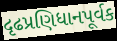
દૃઢપ્રણિધાનપૂર્વક